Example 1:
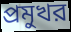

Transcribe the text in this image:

প্রমুখর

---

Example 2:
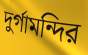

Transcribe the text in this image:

দুর্গামন্দির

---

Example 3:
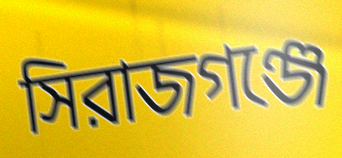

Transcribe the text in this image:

সিরাজগঞ্জে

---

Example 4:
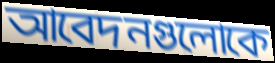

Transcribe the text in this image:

আবেদনগুলোকে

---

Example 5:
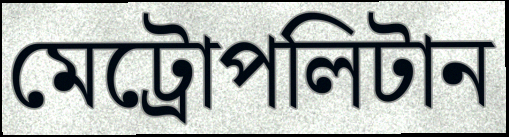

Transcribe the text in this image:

মেট্রোপলিটান